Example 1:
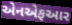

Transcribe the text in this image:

એનએફઆર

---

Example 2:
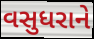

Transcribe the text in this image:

વસુધરાને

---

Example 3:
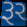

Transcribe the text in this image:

રૂર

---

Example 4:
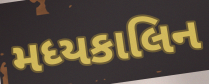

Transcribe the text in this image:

મધ્યકાલિન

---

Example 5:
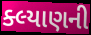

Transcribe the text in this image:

ક્લ્યાણની